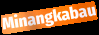
Minangkabau